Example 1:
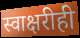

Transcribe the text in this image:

स्वाक्षरीही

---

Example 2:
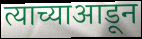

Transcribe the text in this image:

त्याच्याआडून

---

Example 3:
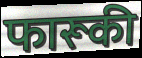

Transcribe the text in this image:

फारूकी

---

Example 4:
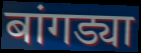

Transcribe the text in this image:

बांगड्या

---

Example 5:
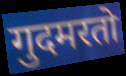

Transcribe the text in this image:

गुदमरतो